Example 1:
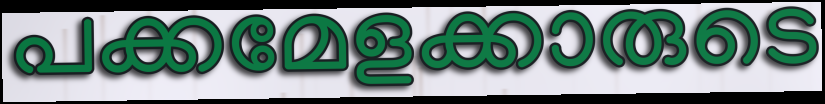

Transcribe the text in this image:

പക്കമേളക്കാരുടെ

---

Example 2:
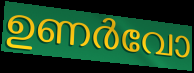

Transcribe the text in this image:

ഉണർവോ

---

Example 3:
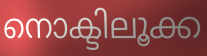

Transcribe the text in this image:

നൊക്ടിലൂക്ക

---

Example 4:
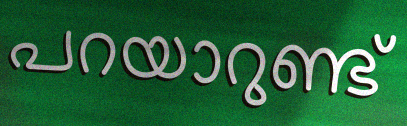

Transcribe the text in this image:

പറയാറുണ്ട്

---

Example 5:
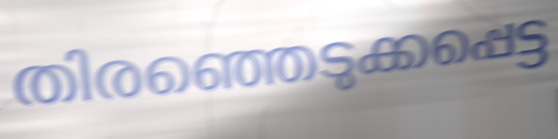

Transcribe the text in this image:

തിരഞ്ഞെടുക്കപ്പെട്ട